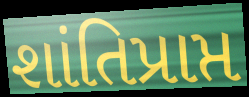
શાંતિપ્રાપ્ત